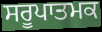
ਸਰੂਪਾਤਮਕ